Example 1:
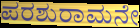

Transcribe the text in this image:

ಪರಶುರಾಮನೇ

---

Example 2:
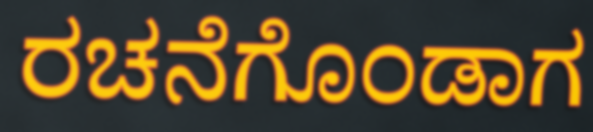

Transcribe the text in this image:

ರಚನೆಗೊಂಡಾಗ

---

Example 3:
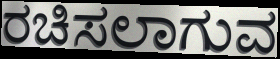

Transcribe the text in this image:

ರಚಿಸಲಾಗುವ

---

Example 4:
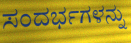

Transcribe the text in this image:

ಸಂದರ್ಭಗಳನ್ನು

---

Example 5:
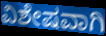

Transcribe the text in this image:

ವಿಶೇಷವಾಗಿ